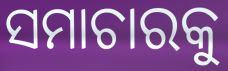
ସମାଚାରକୁ